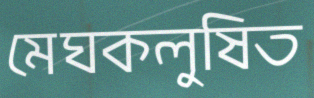
মেঘকলুষিত